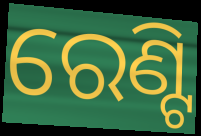
ରେଣ୍ଟି